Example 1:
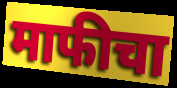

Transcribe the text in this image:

माफीचा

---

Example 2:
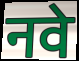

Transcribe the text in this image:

नवे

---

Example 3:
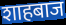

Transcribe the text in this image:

शाहबाज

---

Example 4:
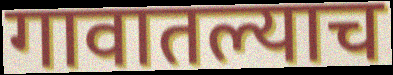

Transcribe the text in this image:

गावातल्याच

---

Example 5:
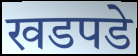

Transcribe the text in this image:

खडपडे